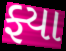
ફ્યા